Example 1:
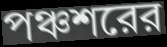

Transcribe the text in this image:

পঞ্চশরের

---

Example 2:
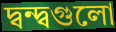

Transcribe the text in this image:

দ্বন্দ্বগুলো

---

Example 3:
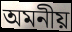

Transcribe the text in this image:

অমনীয়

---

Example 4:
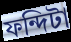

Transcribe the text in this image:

ফন্দিটা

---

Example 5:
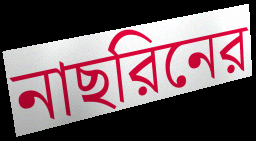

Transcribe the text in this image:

নাছরিনের